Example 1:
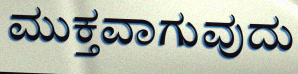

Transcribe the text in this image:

ಮುಕ್ತವಾಗುವುದು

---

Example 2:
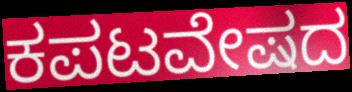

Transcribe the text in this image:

ಕಪಟವೇಷದ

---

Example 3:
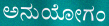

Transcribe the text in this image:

ಅನುಯೋಗಂ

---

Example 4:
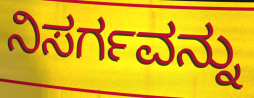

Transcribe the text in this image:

ನಿಸರ್ಗವನ್ನು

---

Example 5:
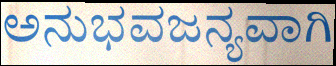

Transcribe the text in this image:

ಅನುಭವಜನ್ಯವಾಗಿ